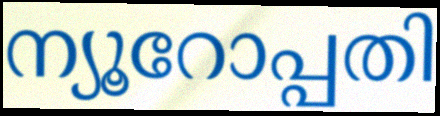
ന്യൂറോപ്പതി